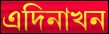
এদিনাখন